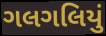
ગલગલિયું